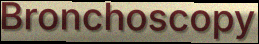
Bronchoscopy